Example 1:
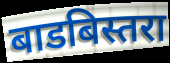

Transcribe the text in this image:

बाडबिस्तरा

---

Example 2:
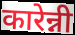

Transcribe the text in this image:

कारेन्नी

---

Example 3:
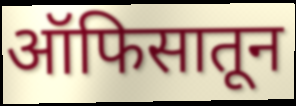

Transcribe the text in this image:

ऑफिसातून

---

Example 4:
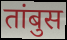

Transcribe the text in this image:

तांबुस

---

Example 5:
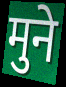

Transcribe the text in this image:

मुने